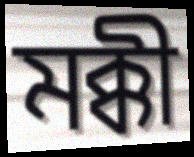
মক্কী